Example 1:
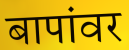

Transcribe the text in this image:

बापांवर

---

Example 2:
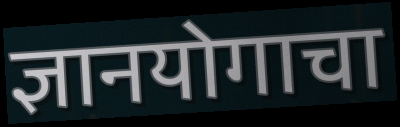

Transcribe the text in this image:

ज्ञानयोगाचा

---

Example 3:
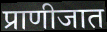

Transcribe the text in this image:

प्राणीजात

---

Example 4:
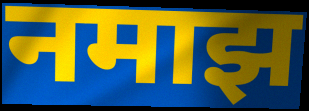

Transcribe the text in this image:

नमाझ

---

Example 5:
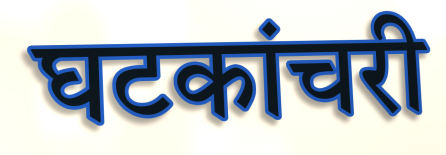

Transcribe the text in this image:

घटकांचरी